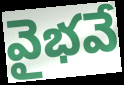
వైభవే